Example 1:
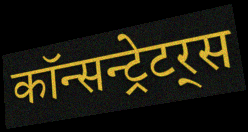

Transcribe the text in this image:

कॉन्सन्ट्रेटर्स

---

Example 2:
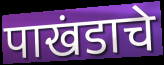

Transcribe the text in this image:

पाखंडाचे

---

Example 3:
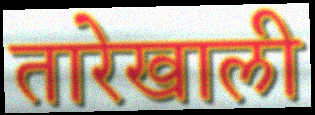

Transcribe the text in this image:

तारेखाली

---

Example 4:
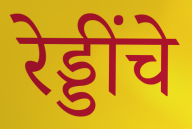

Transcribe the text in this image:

रेड्डींचे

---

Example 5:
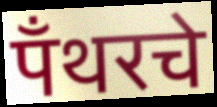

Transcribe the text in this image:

पँथरचे